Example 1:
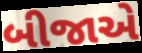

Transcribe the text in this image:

બીજાએ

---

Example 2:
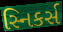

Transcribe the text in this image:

સ્નિકર્સ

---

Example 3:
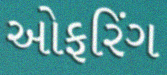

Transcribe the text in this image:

ઓફરિંગ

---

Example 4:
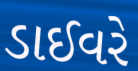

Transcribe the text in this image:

ડાઈવરે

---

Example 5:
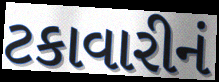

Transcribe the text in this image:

ટકાવારીનં